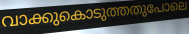
വാക്കുകൊടുത്തതുപോലെ